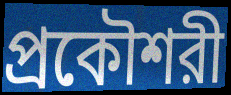
প্রকৌশরী